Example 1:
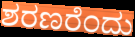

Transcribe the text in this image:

ಶರಣರೆಂದು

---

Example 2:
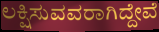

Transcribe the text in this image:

ಲಕ್ಷಿಸುವವರಾಗಿದ್ದೇವೆ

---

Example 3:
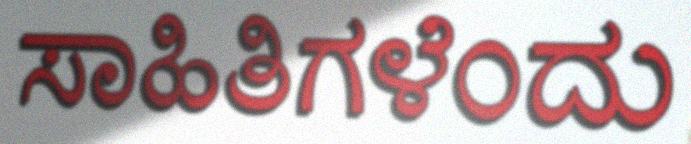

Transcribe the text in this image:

ಸಾಹಿತಿಗಳೆಂದು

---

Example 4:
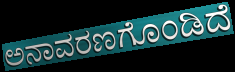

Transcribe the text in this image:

ಅನಾವರಣಗೊಂಡಿದೆ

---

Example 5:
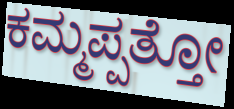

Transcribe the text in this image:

ಕಮ್ಮಪ್ಪತ್ತೋ